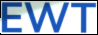
EWT